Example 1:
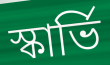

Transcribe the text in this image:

স্কার্ভি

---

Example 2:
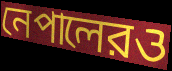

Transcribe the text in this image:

নেপালেরও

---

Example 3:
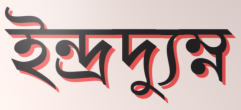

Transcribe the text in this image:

ইন্দ্রদ্যুম্ন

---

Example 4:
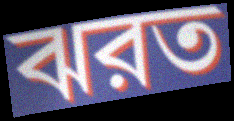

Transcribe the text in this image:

ঝরত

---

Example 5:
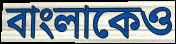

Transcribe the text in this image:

বাংলাকেও